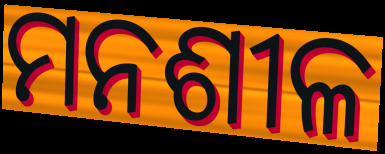
ମନଶୀଳ